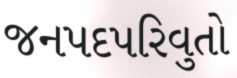
જનપદપરિવુતો